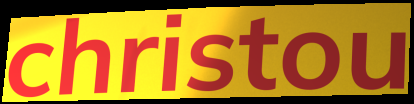
christou